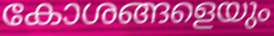
കോശങ്ങളെയും